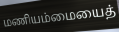
மணியம்மையைத்